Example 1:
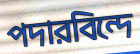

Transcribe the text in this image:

পদারবিন্দে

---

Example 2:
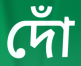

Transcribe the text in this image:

দোঁ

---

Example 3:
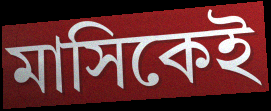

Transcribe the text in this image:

মাসিকেই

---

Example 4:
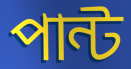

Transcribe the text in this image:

পান্ট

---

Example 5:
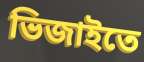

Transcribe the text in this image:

ভিজাইতে